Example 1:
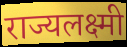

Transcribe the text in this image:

राज्यलक्ष्मी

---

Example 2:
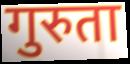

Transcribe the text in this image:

गुरुता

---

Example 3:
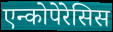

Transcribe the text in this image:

एन्कोपेरेसिस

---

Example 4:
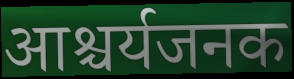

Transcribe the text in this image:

आश्चर्यजनक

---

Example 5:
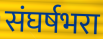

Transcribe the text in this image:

संघर्षभरा